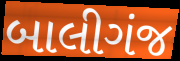
બાલીગંજ